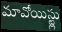
మావోయిస్ట్లు